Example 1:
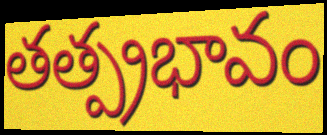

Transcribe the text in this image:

తత్ప్రభావం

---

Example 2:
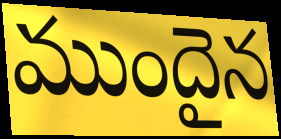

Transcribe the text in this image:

ముందైన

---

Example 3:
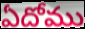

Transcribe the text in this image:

ఏదోము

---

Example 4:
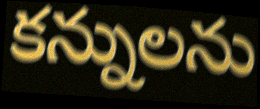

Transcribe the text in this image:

కన్నులను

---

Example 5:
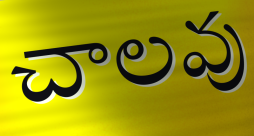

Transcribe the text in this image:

చాలవు